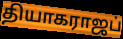
தியாகராஜப்